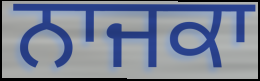
ਨਾਜਕਾ